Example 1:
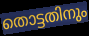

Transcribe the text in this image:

തൊട്ടതിനും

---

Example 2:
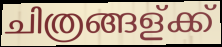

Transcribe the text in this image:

ചിത്രങ്ങള്ക്ക്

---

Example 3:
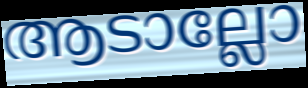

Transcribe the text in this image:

ആടാല്ലോ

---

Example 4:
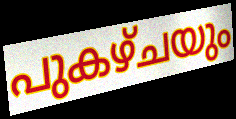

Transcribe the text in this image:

പുകഴ്ചയും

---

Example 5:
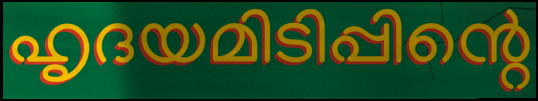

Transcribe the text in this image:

ഹൃദയമിടിപ്പിന്റെ